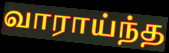
வாராய்ந்த